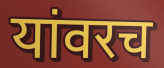
यांवरच